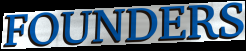
FOUNDERS